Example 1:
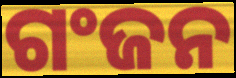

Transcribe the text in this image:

ଗଂଜନ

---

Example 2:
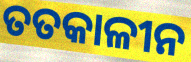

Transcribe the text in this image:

ତତକାଳୀନ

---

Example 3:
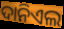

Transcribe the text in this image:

ଦାନିଏଲ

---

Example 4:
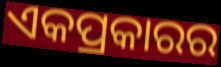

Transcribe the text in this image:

ଏକପ୍ରକାରର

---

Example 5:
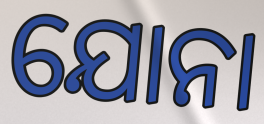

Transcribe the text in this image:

ଯୋନା